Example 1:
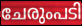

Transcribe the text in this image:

ചേരുംപടി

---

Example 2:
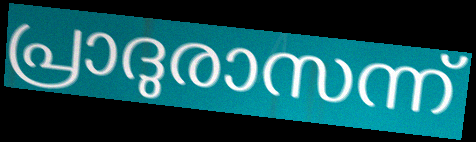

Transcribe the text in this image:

പ്രാദുരാസന്ന്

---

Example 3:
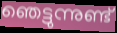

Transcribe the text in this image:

ഞെട്ടുന്നുണ്ട്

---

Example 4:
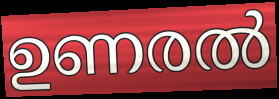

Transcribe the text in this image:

ഉണരൽ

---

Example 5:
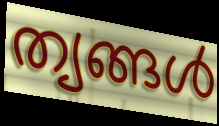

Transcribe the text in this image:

ത്യങ്ങൾ